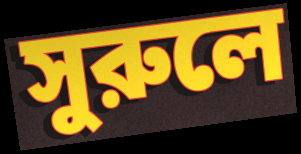
সুরুলে